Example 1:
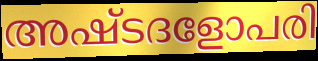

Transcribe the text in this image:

അഷ്ടദളോപരി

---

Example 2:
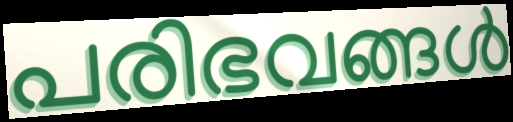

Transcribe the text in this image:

പരിഭവങ്ങൾ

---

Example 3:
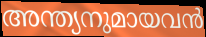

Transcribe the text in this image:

അന്ത്യനുമായവൻ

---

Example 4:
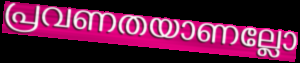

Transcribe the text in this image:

പ്രവണതയാണല്ലോ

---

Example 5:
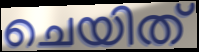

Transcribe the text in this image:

ചെയിത്